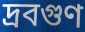
দ্রবগুণ